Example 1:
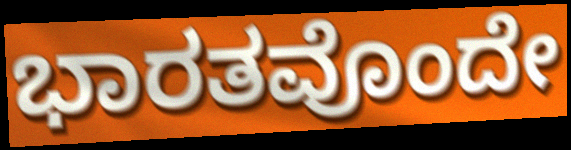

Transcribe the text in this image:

ಭಾರತವೊಂದೇ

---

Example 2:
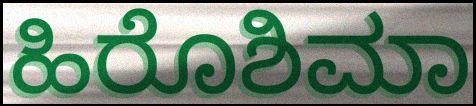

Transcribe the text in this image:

ಹಿರೊಶಿಮಾ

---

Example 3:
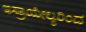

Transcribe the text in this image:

ಇಸ್ರಾಯೇಲ್ಯರಿಂದ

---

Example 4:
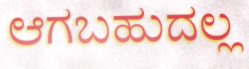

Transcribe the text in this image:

ಆಗಬಹುದಲ್ಲ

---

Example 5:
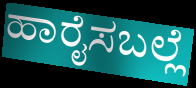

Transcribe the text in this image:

ಹಾರೈಸಬಲ್ಲೆ